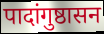
पादांगुष्ठासन